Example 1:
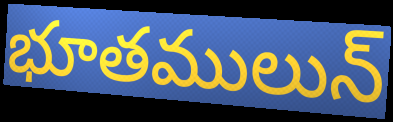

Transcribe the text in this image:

భూతములున్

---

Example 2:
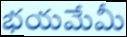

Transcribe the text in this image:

భయమేమీ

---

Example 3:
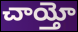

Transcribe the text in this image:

చాయ్తో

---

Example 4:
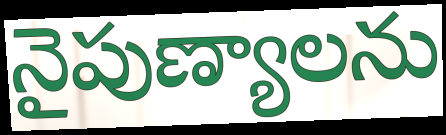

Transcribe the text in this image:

నైపుణ్యాలను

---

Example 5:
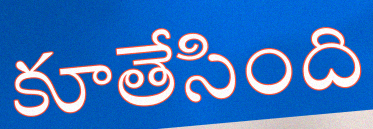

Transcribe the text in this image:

కూతేసింది